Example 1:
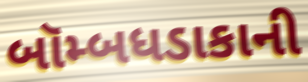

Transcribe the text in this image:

બૉમ્બધડાકાની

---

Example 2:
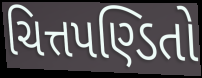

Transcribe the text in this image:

ચિત્તપણ્ડિતો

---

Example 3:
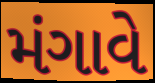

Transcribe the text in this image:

મંગાવે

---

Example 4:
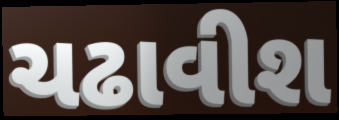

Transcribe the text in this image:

ચઢાવીશ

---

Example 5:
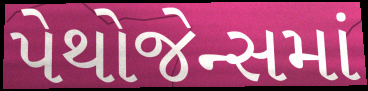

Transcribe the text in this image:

પેથોજેન્સમાં